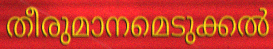
തീരുമാനമെടുക്കൽ